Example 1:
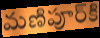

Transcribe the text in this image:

మణిపూర్‌కి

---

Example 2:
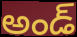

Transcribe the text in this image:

అండ్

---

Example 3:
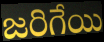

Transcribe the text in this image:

జరిగేయి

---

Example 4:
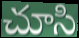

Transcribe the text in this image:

చూసి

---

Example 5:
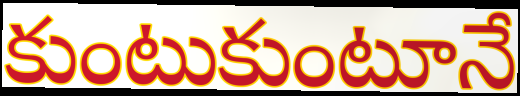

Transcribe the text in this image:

కుంటుకుంటూనే